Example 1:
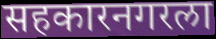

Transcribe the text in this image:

सहकारनगरला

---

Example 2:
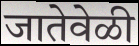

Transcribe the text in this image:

जातेवेळी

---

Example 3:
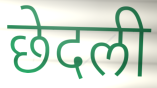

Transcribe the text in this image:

छेदली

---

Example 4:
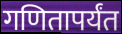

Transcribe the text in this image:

गणितापर्यंत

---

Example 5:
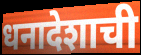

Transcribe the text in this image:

धनादेशाची